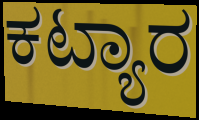
ಕಟ್ಯಾರ